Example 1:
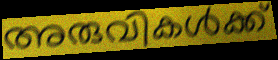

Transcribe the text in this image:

അരുവികൾക്ക്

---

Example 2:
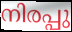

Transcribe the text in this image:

നിരപ്പു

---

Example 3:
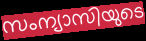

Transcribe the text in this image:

സംന്യാസിയുടെ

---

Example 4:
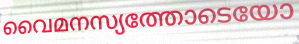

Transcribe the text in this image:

വൈമനസ്യത്തോടെയോ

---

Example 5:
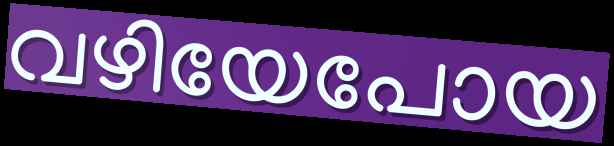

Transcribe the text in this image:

വഴിയേപോയ